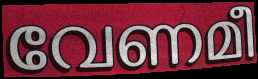
വേണമീ